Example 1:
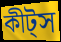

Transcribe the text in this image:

কীট্স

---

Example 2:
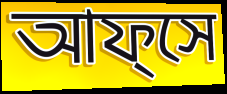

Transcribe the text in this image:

আফ্সে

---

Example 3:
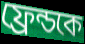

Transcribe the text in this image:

ফ্রেন্ডকে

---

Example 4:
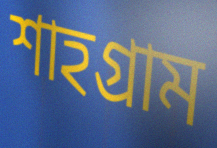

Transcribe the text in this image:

শাহগ্রাম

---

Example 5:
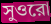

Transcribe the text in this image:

সুওরো